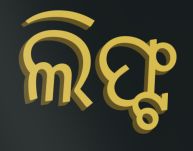
ଲିଫ୍ଟ